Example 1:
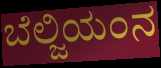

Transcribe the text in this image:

ಬೆಲ್ಜಿಯಂನ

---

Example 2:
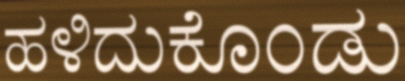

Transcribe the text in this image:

ಹಳಿದುಕೊಂಡು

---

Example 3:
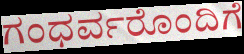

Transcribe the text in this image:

ಗಂಧರ್ವರೊಂದಿಗೆ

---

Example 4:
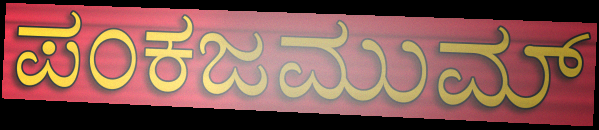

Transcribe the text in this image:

ಪಂಕಜಮುಮ್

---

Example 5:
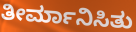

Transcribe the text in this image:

ತೀರ್ಮಾನಿಸಿತು